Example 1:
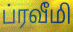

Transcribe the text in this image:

ப்ரவீமி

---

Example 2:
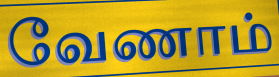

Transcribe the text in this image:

வேணாம்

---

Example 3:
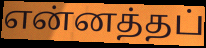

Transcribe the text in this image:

என்னத்தப்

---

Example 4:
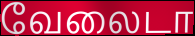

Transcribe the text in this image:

வேலைடா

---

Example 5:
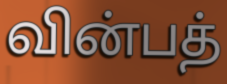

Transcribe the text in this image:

வின்பத்